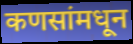
कणसांमधून